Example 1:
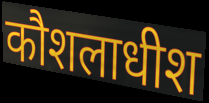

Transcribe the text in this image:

कौशलाधीश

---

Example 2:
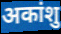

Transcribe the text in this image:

अकांशु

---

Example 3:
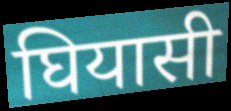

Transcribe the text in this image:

घियासी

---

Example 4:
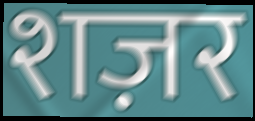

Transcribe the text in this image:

शज़र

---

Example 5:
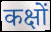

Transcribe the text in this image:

कक्षों